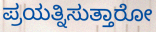
ಪ್ರಯತ್ನಿಸುತ್ತಾರೋ